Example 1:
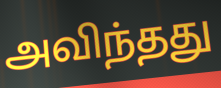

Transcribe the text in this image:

அவிந்தது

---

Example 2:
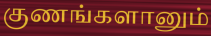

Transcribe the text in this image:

குணங்களானும்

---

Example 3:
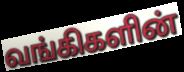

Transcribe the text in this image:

வங்கிகளின்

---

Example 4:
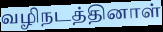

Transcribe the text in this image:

வழிநடத்தினாள்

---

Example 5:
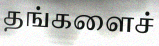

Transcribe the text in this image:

தங்களைச்